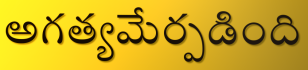
అగత్యమేర్పడింది